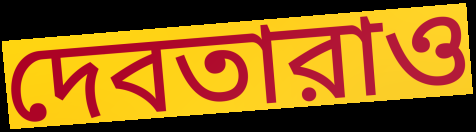
দেবতারাও